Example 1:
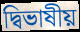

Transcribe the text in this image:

দ্বিভাষীয়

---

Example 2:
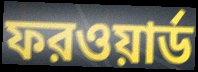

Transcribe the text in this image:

ফরওয়ার্ড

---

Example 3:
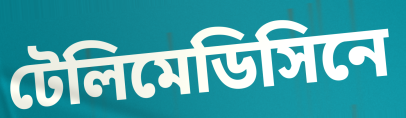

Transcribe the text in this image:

টেলিমেডিসিনে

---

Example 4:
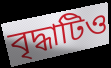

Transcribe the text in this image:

বৃদ্ধাটিও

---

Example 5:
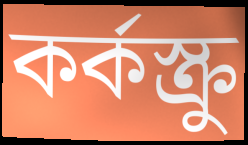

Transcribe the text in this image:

কর্কস্ক্রু